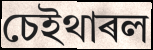
চেইথাৰল